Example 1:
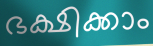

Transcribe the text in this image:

ഭക്ഷിക്കാം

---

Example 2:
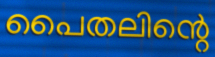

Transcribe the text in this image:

പൈതലിന്റെ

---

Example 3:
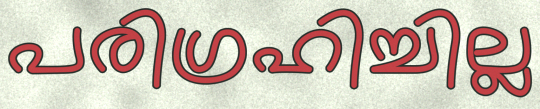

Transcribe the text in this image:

പരിഗ്രഹിച്ചില്ല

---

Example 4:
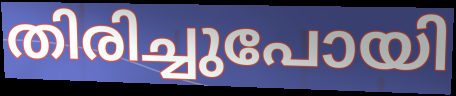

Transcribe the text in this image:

തിരിച്ചുപോയി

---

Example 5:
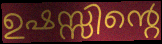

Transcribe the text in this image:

ഉഷസ്സിന്റെ